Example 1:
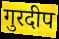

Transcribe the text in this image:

गुरदीप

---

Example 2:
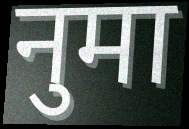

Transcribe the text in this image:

नुमा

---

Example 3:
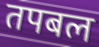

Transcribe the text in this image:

तपबल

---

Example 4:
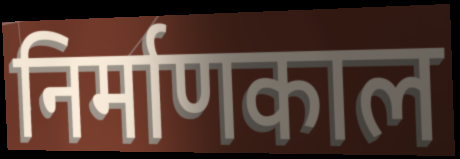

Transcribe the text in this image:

निर्माणकाल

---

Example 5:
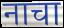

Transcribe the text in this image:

नाचा